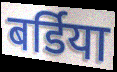
बर्डिया